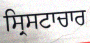
ਸ੍ਰਿਸਟਾਚਾਰ